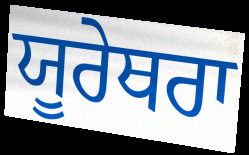
ਯੂਰੇਥਰਾ